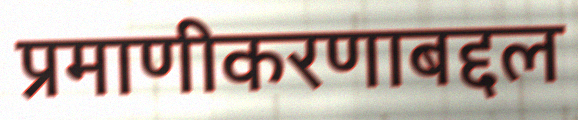
प्रमाणीकरणाबद्दल